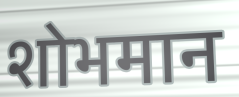
शोभमान